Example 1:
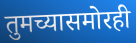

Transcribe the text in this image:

तुमच्यासमोरही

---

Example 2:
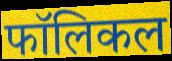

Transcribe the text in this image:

फॉलिकल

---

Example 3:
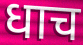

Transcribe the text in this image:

धाच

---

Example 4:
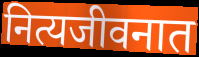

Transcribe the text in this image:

नित्यजीवनात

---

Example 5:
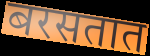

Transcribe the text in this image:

बरसतात